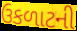
ઉકળાટની